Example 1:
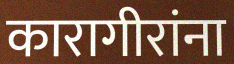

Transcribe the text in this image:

कारागीरांना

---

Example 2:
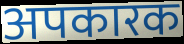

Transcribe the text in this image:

अपकारक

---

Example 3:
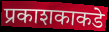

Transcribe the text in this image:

प्रकाशकाकडे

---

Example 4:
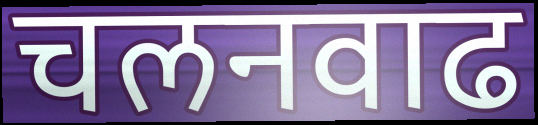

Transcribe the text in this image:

चलनवाढ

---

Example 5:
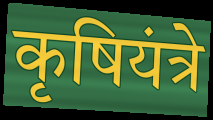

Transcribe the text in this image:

कृषियंत्रे